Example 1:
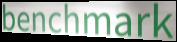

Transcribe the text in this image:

benchmark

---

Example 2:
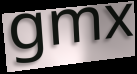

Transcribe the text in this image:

gmx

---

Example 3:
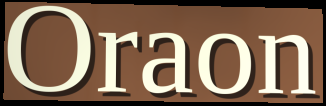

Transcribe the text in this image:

Oraon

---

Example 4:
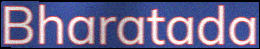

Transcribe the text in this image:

Bharatada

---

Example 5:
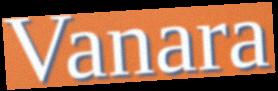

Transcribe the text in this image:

Vanara